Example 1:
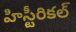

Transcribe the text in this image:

హిస్టీరికల్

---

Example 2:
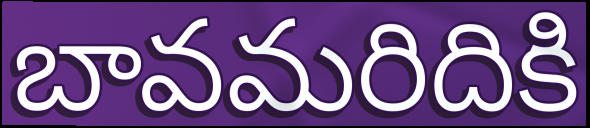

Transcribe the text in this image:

బావమరిదికి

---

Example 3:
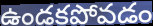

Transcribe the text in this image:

ఉండకపోవడం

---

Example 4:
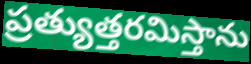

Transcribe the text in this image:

ప్రత్యుత్తరమిస్తాను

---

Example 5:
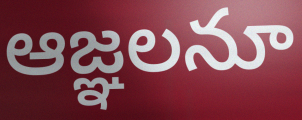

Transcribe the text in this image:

ఆజ్ఞలనూ